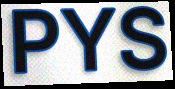
PYS